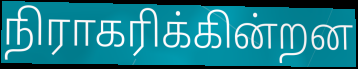
நிராகரிக்கின்றன